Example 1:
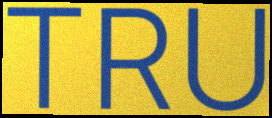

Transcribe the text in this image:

TRU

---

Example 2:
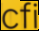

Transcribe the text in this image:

cfi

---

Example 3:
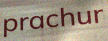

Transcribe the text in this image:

prachur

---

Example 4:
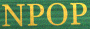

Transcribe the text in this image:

NPOP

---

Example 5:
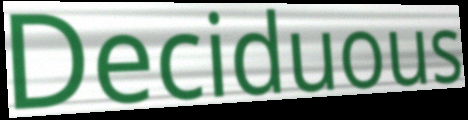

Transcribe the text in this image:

Deciduous